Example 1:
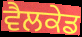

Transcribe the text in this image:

ਵੈਲਕੇਡ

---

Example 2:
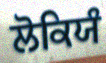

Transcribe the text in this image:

ਲੋਕਿਯੰ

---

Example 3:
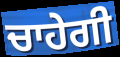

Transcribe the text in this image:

ਚਾਹੇਗੀ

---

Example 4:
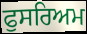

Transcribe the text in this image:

ਫੁਸਰਿਅਮ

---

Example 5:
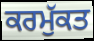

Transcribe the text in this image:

ਕਰਮੁੱਕਤ